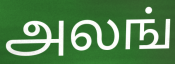
அலங்